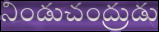
నిండుచంద్రుడు